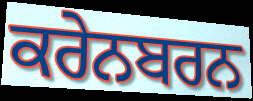
ਕਰੇਨਬਰਨ